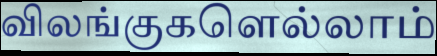
விலங்குகளெல்லாம்